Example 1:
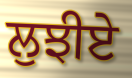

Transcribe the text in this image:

ਲੁਝੀਏ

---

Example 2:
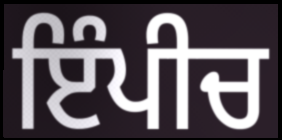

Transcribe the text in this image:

ਇੰਪੀਚ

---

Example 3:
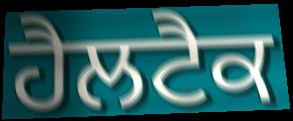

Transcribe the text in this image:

ਹੈਲਟੈਕ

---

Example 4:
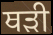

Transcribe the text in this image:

ਥੜੀ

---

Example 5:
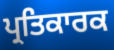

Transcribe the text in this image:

ਪ੍ਰਤਿਕਾਰਕ